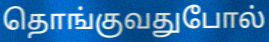
தொங்குவதுபோல்